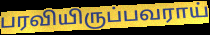
பரவியிருப்பவராய்